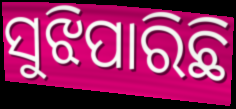
ସୁଝିପାରିଛି